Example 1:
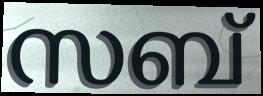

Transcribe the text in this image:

സബ്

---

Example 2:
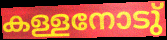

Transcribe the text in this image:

കള്ളനോടു്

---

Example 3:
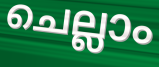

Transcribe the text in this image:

ചെല്ലാം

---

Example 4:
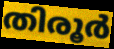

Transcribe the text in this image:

തിരൂർ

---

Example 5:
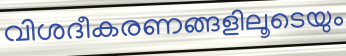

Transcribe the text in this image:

വിശദീകരണങ്ങളിലൂടെയും